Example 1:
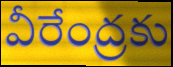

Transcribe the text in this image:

వీరేంద్రకు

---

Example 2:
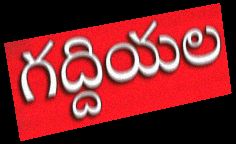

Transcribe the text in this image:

గద్దియల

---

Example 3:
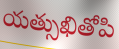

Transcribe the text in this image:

యత్సుఖితోపి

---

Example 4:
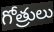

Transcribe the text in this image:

గోత్రులు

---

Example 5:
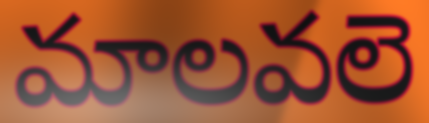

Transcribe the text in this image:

మాలవలె